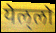
येल्लो